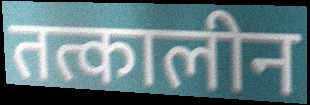
तत्कालीन